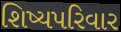
શિષ્યપરિવાર